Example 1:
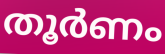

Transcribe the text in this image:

തൂർണം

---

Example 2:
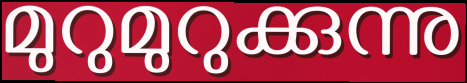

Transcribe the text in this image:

മുറുമുറുക്കുന്നു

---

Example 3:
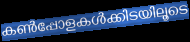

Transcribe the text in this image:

കൺപ്പോളകൾക്കിടയിലൂടെ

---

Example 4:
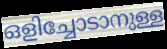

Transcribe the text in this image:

ഒളിച്ചോടാനുള്ള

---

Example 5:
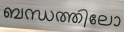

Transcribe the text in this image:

ബന്ധത്തിലോ